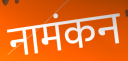
नामंकन